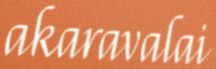
akaravalai